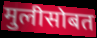
मुलीसोबत